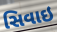
સિવાઇ